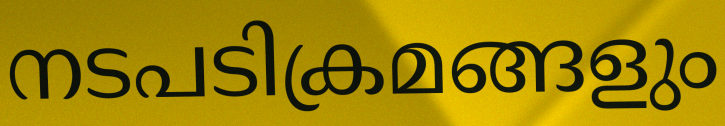
നടപടിക്രമങ്ങളും